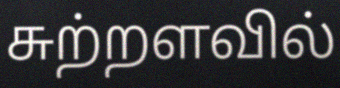
சுற்றளவில்